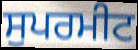
ਸੁਪਰਮੀਟ